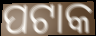
ପଟାକ